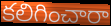
కలిగించారా